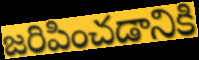
జరిపించడానికి